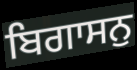
ਬਿਗਾਸਨੁ